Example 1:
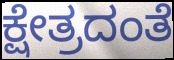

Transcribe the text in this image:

ಕ್ಷೇತ್ರದಂತೆ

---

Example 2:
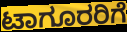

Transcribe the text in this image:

ಟಾಗೂರರಿಗೆ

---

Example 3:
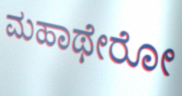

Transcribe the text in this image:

ಮಹಾಥೇರೋ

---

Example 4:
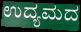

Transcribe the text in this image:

ಉದ್ಯಮದ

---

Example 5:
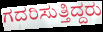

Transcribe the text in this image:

ಗದರಿಸುತ್ತಿದ್ದರು